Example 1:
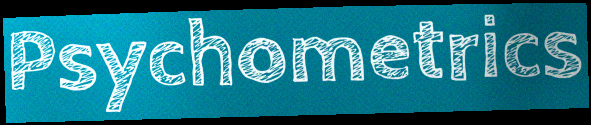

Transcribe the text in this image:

Psychometrics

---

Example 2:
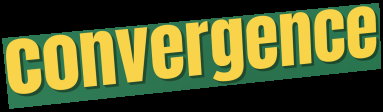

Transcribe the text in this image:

convergence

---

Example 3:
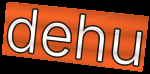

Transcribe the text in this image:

dehu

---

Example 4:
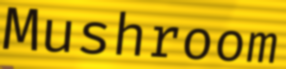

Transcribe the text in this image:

Mushroom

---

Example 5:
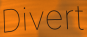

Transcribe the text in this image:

Divert